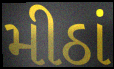
મીઠાં